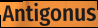
Antigonus